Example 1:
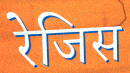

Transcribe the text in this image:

रेजिस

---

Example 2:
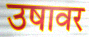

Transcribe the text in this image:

उषावर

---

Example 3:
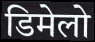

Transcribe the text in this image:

डिमेलो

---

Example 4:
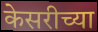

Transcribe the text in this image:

केसरीच्या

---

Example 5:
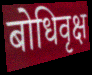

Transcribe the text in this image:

बोधिवृक्ष